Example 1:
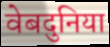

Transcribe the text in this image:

वेबदुनिया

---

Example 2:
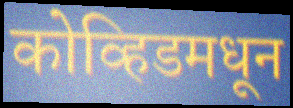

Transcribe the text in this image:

कोव्हिडमधून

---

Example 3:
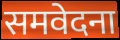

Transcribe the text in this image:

समवेदना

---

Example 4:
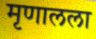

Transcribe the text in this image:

मृणालला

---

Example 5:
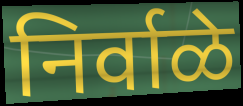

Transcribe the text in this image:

निर्वाळे